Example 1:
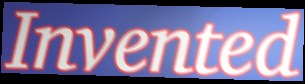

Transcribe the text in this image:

Invented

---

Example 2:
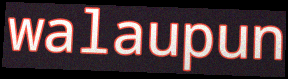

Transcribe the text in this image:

walaupun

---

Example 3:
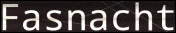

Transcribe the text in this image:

Fasnacht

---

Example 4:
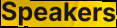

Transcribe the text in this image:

Speakers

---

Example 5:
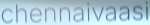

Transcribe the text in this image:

chennaivaasi